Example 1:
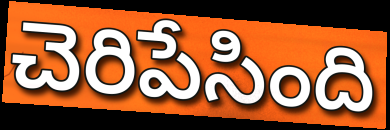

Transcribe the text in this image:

చెరిపేసింది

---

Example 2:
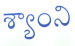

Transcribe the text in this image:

శ్యాంని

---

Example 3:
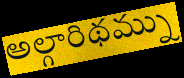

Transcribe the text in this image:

అల్గారిథమ్ను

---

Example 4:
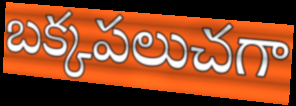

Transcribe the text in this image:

బక్కపలుచగా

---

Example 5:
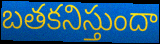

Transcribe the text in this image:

బతకనిస్తుందా